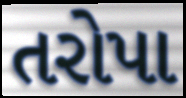
તરોપા